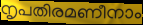
നൃപതിരമണീനാം